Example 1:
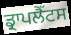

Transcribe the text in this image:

ਡ੍ਰਾਪਲੈੱਟਸ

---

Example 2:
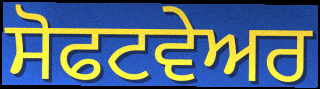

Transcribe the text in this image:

ਸੋਫਟਵੇਅਰ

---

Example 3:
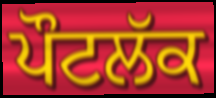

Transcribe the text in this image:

ਪੌਟਲੱਕ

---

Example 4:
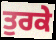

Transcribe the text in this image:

ਤੁਰਕੇ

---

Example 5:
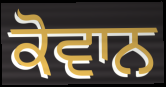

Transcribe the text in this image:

ਕੋਵਾਨ